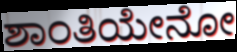
ಶಾಂತಿಯೇನೋ